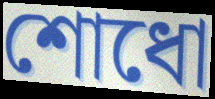
শোধো